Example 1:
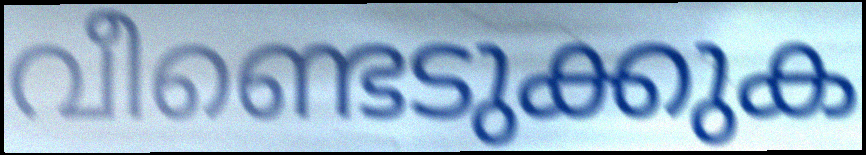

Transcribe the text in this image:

വീണ്ടെടുക്കുക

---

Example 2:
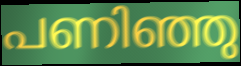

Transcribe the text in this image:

പണിഞ്ഞു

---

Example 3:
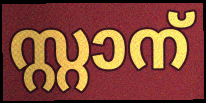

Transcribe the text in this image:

സ്റ്റാന്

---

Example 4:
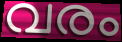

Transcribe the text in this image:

വരം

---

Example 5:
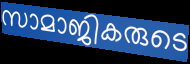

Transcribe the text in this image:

സാമാജികരുടെ